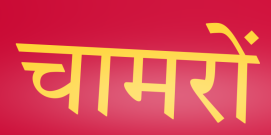
चामरों